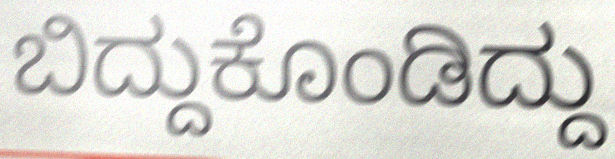
ಬಿದ್ದುಕೊಂಡಿದ್ದು